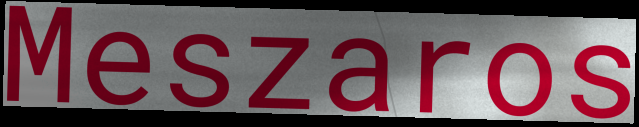
Meszaros